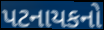
પટનાયકનો